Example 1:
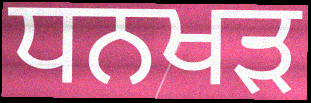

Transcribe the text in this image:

ਧਨਖੜ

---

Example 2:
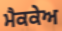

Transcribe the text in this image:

ਮੈਕਕੇਅ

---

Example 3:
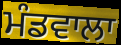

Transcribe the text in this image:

ਮੰਡਵਾਲਾ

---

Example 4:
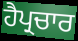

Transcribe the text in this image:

ਹੈਪ੍ਰਚਾਰ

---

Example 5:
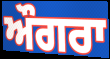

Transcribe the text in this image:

ਔਗਰਾ